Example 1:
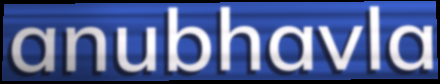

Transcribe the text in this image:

anubhavla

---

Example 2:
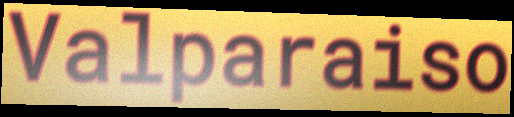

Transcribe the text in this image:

Valparaiso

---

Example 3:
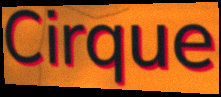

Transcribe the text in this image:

Cirque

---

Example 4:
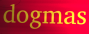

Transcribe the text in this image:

dogmas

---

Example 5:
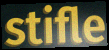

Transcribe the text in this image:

stifle